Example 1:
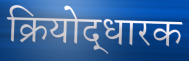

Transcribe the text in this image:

क्रियोद्धारक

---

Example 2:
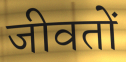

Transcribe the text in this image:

जीवतों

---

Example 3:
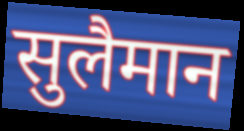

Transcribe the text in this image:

सुलैमान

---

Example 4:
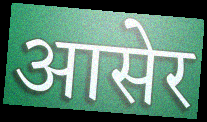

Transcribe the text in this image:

आसेर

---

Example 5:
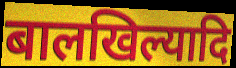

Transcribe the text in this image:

बालखिल्यादि